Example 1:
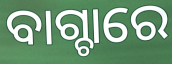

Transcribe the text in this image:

ବାଗ୍ଚାରେ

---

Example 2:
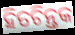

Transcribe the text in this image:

ହିତଚିନ୍ତକ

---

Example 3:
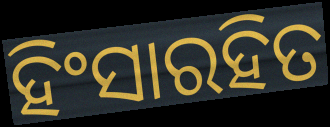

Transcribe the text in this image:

ହିଂସାରହିତ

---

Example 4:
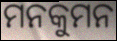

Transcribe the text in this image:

ମନକୁମନ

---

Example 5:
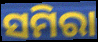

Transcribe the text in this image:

ସମିରା